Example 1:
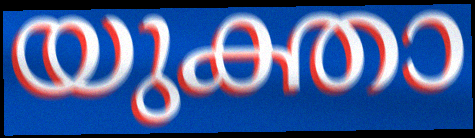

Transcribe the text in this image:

യുക്താ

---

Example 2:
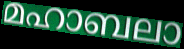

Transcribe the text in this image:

മഹാബലാ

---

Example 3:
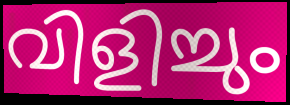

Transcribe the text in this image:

വിളിച്ചും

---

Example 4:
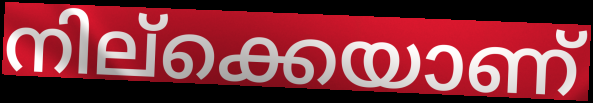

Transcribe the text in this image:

നില്ക്കെയാണ്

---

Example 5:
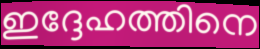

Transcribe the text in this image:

ഇദ്ദേഹത്തിനെ